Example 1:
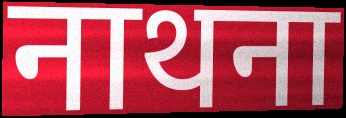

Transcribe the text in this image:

नाथना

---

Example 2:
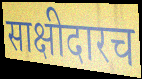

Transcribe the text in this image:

साक्षीदारच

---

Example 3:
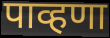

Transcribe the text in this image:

पाव्हणा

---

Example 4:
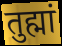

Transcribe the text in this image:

तुह्मां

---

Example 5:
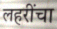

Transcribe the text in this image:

लहरींचा